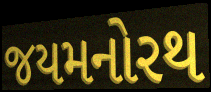
જયમનોરથ